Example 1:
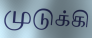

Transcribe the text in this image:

முடுக்கி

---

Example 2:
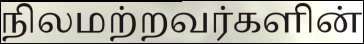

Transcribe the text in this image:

நிலமற்றவர்களின்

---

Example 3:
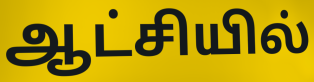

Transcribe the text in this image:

ஆட்சியில்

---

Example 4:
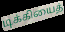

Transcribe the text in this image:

டிக்கியைத்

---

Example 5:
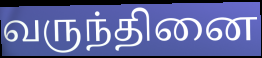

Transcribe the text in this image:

வருந்தினை